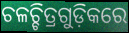
ଚଳଚ୍ଚିତ୍ରଗୁଡ଼ିକରେ